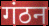
गंठन